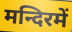
मन्दिरमें